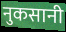
नुकसानी